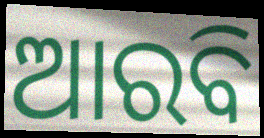
ଆରବି